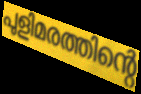
പുളിമരത്തിന്റെ